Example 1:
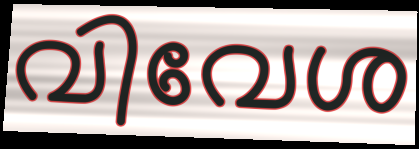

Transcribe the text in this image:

വിവേശ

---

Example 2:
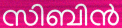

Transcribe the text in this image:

സിബിൻ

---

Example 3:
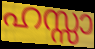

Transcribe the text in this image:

ഹസ്സാ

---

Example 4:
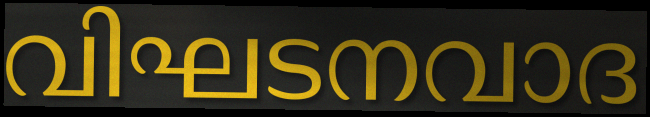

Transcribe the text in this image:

വിഘടനവാദ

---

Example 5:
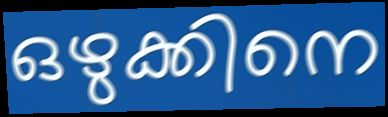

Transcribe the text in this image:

ഒഴുക്കിനെ